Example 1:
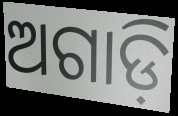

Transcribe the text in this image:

ଅଗାଡ଼ି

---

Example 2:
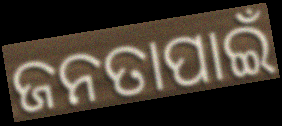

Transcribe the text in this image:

ଜନତାପାଇଁ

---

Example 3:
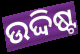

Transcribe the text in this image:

ଉଦ୍ଦିଷ୍ଟ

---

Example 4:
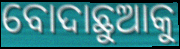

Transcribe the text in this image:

ବୋଦାଛୁଆକୁ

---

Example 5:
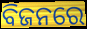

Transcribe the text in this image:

ବିଜନରେ